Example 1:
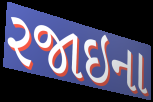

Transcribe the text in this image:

રજાઇના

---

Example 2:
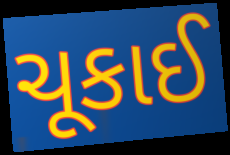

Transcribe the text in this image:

ચૂકાઈ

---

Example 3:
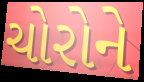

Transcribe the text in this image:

ચોરોને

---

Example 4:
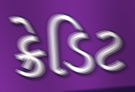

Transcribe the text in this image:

ક્રેડિટ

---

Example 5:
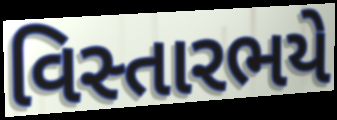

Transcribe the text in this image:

વિસ્તારભયે